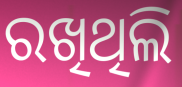
ରଖିଥିଲି